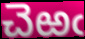
చెఱఁ